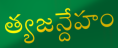
త్యజన్దేహం